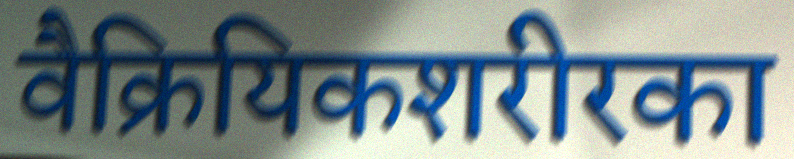
वैक्रियिकशरीरका